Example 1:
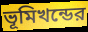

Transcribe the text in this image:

ভূমিখন্ডের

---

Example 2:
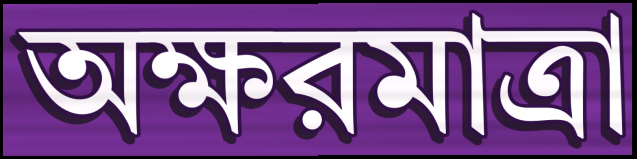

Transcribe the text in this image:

অক্ষরমাত্রা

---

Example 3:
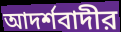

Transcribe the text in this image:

আদর্শবাদীর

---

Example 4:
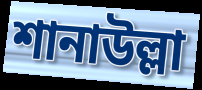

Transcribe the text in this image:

শানাউল্লা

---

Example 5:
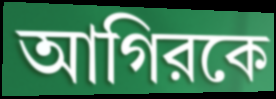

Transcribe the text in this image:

আগিরকে